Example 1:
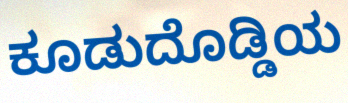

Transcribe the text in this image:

ಕೂಡುದೊಡ್ಡಿಯ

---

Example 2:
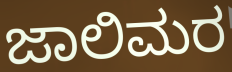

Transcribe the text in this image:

ಜಾಲಿಮರ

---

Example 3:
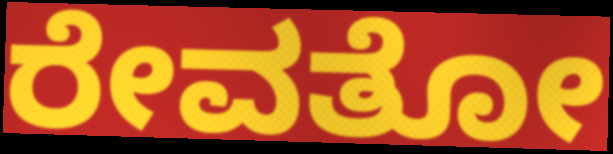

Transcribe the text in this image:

ರೇವತೋ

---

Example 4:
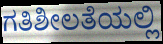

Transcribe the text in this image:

ಗತಿಶೀಲತೆಯಲ್ಲಿ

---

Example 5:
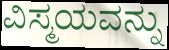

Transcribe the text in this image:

ವಿಸ್ಮಯವನ್ನು